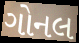
ગોનલ